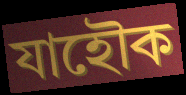
যাহৌক